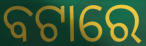
ବଟାରେ